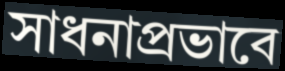
সাধনাপ্রভাবে